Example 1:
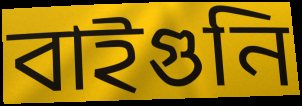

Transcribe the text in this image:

বাইগুনি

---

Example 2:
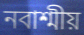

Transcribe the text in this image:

নবাশ্মীয়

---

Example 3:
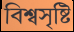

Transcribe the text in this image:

বিশ্বসৃষ্টি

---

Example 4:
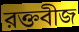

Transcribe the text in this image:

রক্তবীজ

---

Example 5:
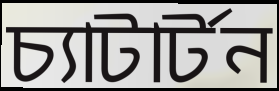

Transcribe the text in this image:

চ্যাটার্টন